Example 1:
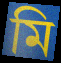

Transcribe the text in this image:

মি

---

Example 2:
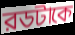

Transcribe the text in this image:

রডটাকে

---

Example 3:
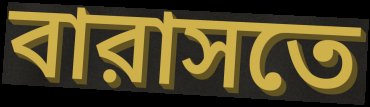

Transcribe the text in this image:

বারাসতে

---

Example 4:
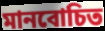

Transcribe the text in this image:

মানবোচিত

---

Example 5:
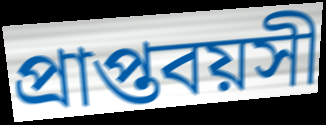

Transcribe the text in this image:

প্রাপ্তবয়সী